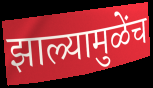
झाल्यामुळेंच